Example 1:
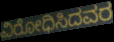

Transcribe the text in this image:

ವಿರೋಧಿಸಿದವರ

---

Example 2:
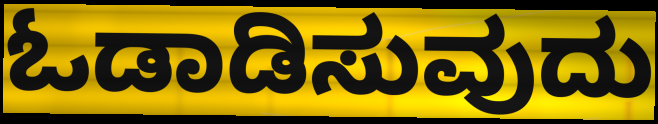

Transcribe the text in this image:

ಓಡಾಡಿಸುವುದು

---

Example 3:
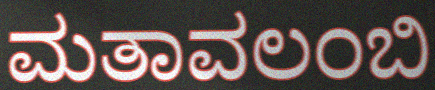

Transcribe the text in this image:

ಮತಾವಲಂಬಿ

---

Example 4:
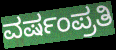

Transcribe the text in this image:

ವರ್ಷಂಪ್ರತಿ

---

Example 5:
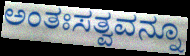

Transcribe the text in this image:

ಅಂತಃಸತ್ವವನ್ನೂ